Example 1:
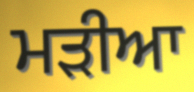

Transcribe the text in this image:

ਮੜੀਆ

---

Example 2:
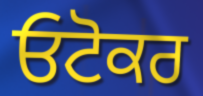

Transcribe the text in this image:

ਓਟੋਕਰ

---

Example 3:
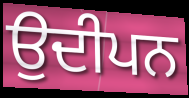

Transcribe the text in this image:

ਉਦੀਪਨ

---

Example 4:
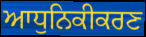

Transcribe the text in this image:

ਆਧੁਨਿਕੀਕਰਣ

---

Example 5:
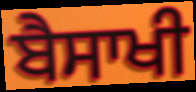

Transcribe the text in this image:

ਬੈਸਾਖੀ